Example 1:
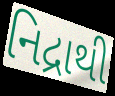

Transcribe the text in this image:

નિદ્રાથી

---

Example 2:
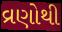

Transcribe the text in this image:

વ્રણોથી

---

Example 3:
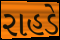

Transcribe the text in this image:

રાહડે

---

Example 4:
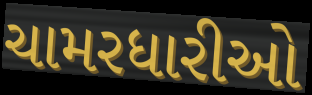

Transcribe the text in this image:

ચામરધારીઓ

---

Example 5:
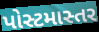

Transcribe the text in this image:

પોસ્ટમાસ્તર